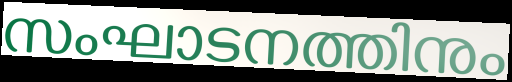
സംഘാടനത്തിനും